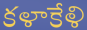
కళాకేళి